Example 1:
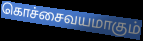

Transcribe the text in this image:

கொச்சைவயமாகும்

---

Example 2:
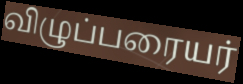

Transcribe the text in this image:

விழுப்பரையர்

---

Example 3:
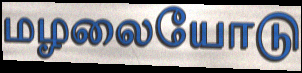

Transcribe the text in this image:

மழலையோடு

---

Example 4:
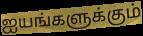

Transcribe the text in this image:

ஐயங்களுக்கும்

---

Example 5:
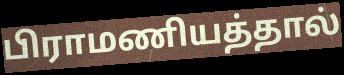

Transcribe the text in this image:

பிராமணியத்தால்